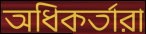
অধিকর্তারা